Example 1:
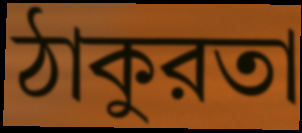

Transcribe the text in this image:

ঠাকুরতা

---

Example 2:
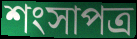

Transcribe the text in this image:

শংসাপত্র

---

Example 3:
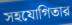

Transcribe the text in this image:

সহযোগিতার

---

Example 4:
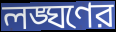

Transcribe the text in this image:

লঙ্ঘণের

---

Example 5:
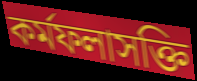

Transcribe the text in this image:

কর্মফলাসক্তি